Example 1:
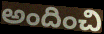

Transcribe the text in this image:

అందించి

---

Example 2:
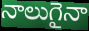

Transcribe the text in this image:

నాలుగైనా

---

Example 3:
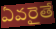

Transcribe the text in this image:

ఏవరైతే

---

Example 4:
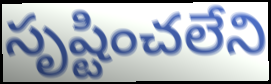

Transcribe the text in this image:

సృష్టించలేని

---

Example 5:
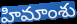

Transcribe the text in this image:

హిమాంశు